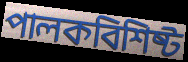
পালকবিশিষ্ট